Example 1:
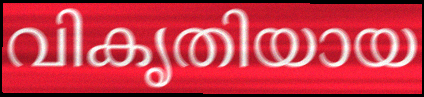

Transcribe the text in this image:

വികൃതിയായ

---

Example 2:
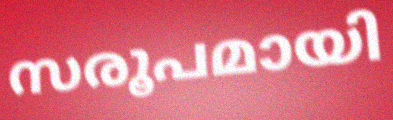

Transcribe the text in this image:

സരൂപമായി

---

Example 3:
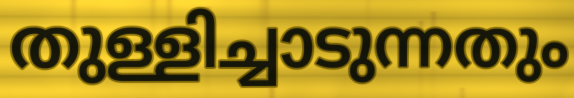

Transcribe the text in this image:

തുള്ളിച്ചാടുന്നതും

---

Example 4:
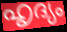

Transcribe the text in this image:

ഹൃദ്യം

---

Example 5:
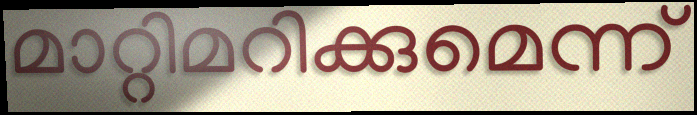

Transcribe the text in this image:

മാറ്റിമറിക്കുമെന്ന്